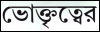
ভোক্তৃত্বের